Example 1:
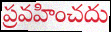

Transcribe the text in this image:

ప్రవహించదు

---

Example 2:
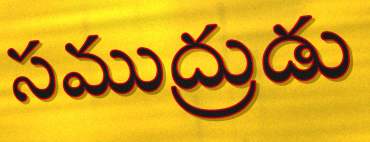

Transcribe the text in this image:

సముద్రుడు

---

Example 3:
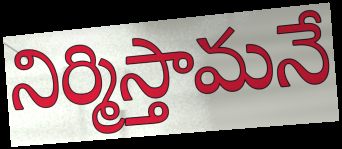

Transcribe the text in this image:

నిర్మిస్తామనే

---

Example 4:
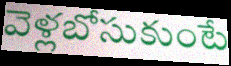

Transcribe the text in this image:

వెళ్లబోసుకుంటే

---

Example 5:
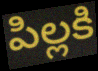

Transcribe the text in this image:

పిల్లకి